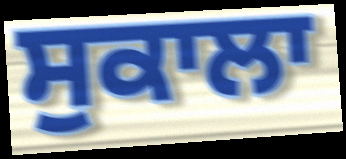
ਸੁਕਾਲਾ